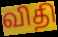
விதி